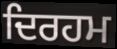
ਦਿਰਹਮ